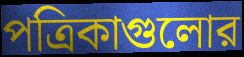
পত্রিকাগুলোর